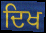
ਦਿਖ